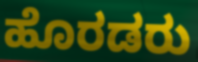
ಹೊರಡರು